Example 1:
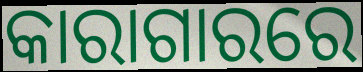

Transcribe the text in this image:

କାରାଗାରରେ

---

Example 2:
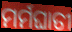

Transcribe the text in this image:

ମର୍ମଘାତୀ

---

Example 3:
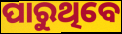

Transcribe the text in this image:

ପାରୁଥିବେ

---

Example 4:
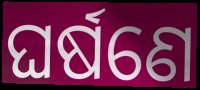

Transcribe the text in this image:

ଘର୍ଷଣେ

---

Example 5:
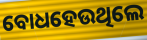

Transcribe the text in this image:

ବୋଧହେଉଥିଲେ